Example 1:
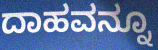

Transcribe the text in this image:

ದಾಹವನ್ನೂ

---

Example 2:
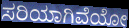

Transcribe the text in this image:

ಸರಿಯಾಗಿವೆಯೋ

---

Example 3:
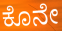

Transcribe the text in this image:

ಕೊನೇ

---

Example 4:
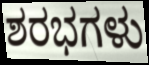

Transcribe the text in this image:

ಶರಭಗಳು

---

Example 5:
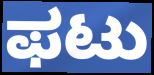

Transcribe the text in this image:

ಫಟು